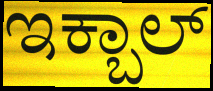
ಇಕ್ಬಾಲ್